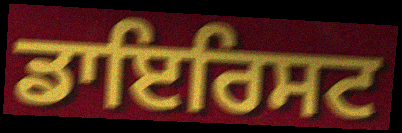
ਡਾਇਰਿਸਟ